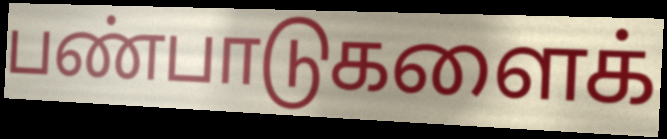
பண்பாடுகளைக்